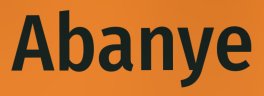
Abanye